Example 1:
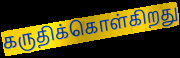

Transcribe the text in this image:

கருதிக்கொள்கிறது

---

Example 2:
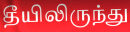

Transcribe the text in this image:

தீயிலிருந்து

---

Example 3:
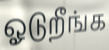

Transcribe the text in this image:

ஓடுறீங்க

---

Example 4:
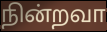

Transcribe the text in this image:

நின்றவா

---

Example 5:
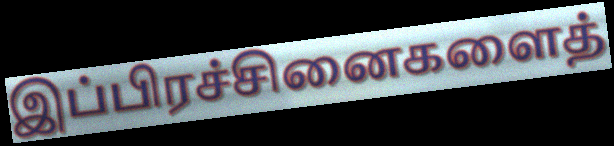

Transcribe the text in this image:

இப்பிரச்சினைகளைத்